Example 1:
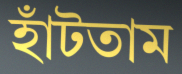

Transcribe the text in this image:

হাঁটতাম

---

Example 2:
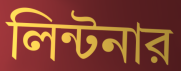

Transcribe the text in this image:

লিন্টনার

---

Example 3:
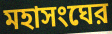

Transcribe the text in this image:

মহাসংঘের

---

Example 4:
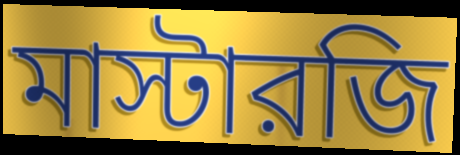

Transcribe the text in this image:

মাস্টারজি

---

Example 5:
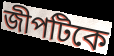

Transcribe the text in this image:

জীপটিকে